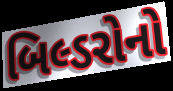
બિલ્ડરોનો